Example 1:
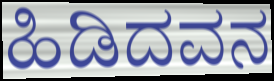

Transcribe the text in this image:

ಹಿಡಿದವನ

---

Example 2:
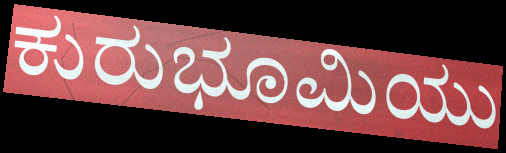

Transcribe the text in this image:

ಕುರುಭೂಮಿಯು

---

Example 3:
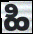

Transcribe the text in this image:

ಹಿ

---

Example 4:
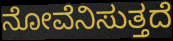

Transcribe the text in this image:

ನೋವೆನಿಸುತ್ತದೆ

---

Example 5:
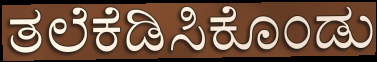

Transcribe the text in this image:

ತಲೆಕೆಡಿಸಿಕೊಂಡು